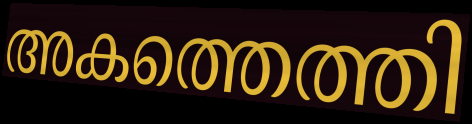
അകത്തെത്തി